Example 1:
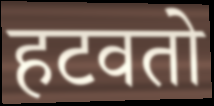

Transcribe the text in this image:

हटवतो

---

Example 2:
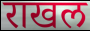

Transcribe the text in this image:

राखल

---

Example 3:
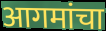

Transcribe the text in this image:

आगमांचा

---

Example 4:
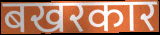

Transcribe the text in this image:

बखरकार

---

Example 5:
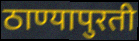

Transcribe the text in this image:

ठाण्यापुरती